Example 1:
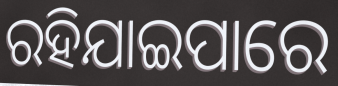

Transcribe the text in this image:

ରହିଯାଇପାରେ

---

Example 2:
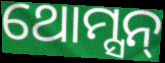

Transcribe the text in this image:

ଥୋମ୍ସନ୍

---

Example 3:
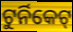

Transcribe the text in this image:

ଟୁର୍ନିକେଟ୍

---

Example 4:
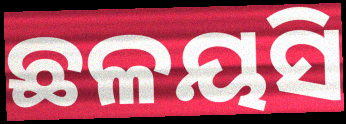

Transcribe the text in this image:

ଛଳୟସି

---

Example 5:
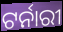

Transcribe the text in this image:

ଟର୍ନାରୀ